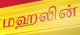
மஹலின்